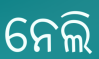
ନେଲି